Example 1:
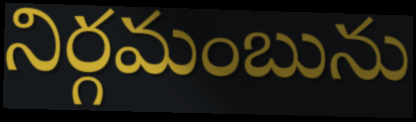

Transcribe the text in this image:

నిర్గమంబును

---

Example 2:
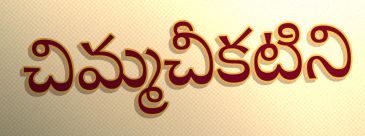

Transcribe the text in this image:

చిమ్మచీకటిని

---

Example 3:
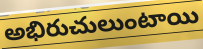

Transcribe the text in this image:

అభిరుచులుంటాయి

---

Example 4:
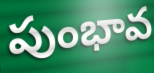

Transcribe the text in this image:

పుంభావ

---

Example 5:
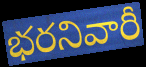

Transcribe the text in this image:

భరనివారీ